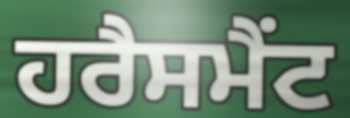
ਹਰੈਸਮੈਂਟ